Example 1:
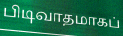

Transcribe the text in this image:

பிடிவாதமாகப்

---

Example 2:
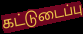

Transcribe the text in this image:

கட்டுடைப்பு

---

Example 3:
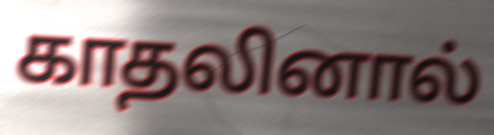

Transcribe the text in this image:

காதலினால்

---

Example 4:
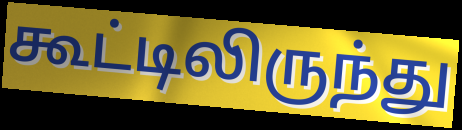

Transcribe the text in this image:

கூட்டிலிருந்து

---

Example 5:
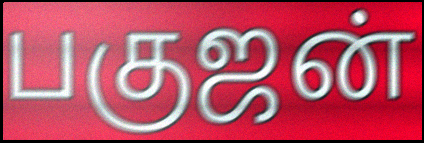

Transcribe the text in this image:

பகுஜன்